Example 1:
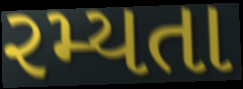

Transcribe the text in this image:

રમ્યતા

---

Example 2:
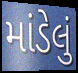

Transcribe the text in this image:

માંડેલું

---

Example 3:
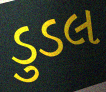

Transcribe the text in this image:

ડુડલ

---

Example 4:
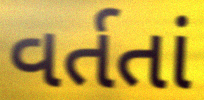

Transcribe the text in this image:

વર્તતાં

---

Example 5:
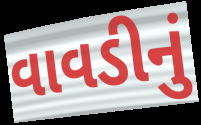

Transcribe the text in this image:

વાવડીનું